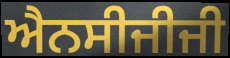
ਐਨਸੀਜੀਜੀ